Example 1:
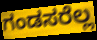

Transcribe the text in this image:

ಗಂಡಸರೆಲ್ಲ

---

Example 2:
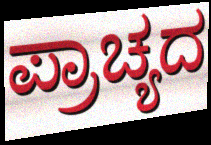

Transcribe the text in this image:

ಪ್ರಾಚ್ಯದ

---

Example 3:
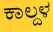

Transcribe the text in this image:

ಕಾಲ್ದಳ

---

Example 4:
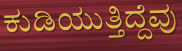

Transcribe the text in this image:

ಕುಡಿಯುತ್ತಿದ್ದೆವು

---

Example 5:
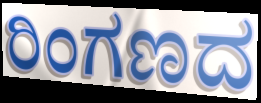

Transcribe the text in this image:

ರಿಂಗಣದ